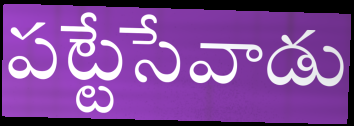
పట్టేసేవాడు